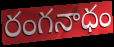
రంగనాధం